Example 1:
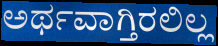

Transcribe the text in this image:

ಅರ್ಥವಾಗ್ತಿರಲಿಲ್ಲ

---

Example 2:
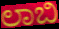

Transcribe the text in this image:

ಲಾಬಿ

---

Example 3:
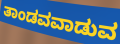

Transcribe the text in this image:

ತಾಂಡವವಾಡುವ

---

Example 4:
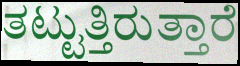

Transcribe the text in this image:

ತಟ್ಟುತ್ತಿರುತ್ತಾರೆ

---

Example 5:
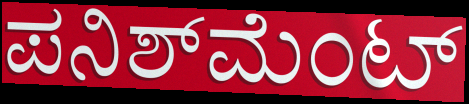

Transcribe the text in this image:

ಪನಿಶ್‌ಮೆಂಟ್